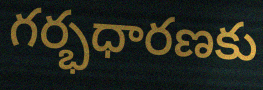
గర్భధారణకు